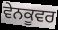
ਵੇਨਕੂਵਰ